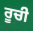
ਰੂਚੀ